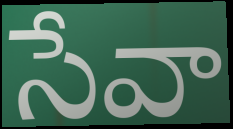
సేవా